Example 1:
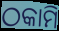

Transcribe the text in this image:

ଠକାମି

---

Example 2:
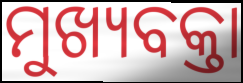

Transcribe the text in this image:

ମୁଖ୍ୟବକ୍ତା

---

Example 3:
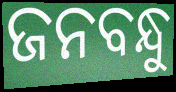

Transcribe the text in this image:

ଜନବନ୍ଧୁ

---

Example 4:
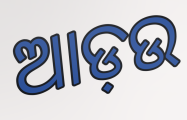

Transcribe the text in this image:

ଆଡ଼ଉ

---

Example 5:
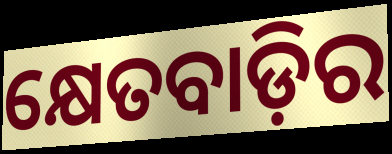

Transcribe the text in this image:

କ୍ଷେତବାଡ଼ିର